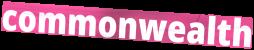
commonwealth